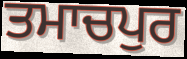
ਤਮਾਚਪੁਰ